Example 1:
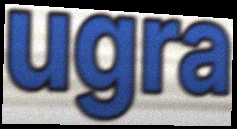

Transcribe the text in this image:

ugra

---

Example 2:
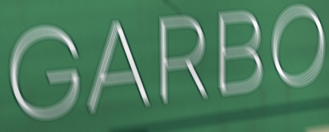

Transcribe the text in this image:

GARBO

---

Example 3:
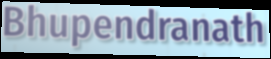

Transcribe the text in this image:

Bhupendranath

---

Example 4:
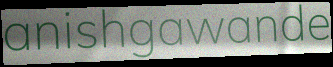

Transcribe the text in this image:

anishgawande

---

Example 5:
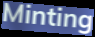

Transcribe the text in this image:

Minting